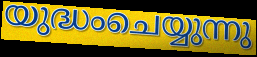
യുദ്ധംചെയ്യുന്നു